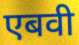
एबवी